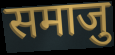
समाजु